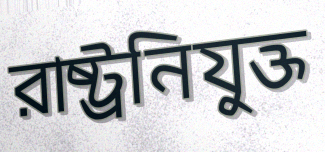
রাষ্ট্রনিযুক্ত